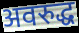
अवरुद्ध